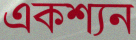
একশ্যন